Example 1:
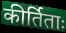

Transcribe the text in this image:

कीर्तिताः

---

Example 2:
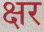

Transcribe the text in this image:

क्षर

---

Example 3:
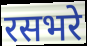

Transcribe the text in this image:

रसभरे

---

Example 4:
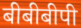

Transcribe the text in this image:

बीबीबीपी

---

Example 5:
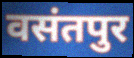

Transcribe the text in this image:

वसंतपुर